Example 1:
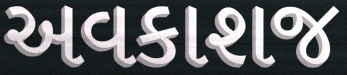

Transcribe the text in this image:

અવકાશજ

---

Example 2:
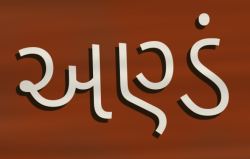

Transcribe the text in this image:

અણ્ડં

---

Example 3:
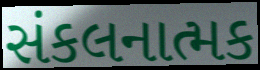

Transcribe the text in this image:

સંકલનાત્મક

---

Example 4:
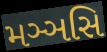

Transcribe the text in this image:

મઞ્ઞસિ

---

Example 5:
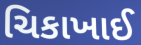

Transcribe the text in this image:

ચિકાખાઈ